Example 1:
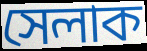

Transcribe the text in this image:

সেলাক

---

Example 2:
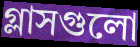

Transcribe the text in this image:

গ্লাসগুলো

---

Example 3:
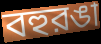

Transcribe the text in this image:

বহুরঙা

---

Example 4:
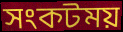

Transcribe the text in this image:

সংকটময়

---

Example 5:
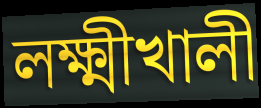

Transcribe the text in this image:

লক্ষ্মীখালী